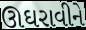
ઊઘરાવીને